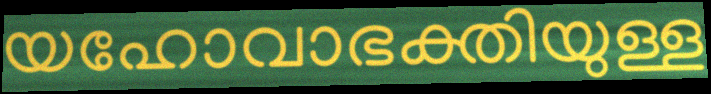
യഹോവാഭക്തിയുള്ള